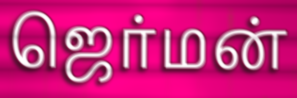
ஜெர்மன்